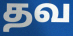
தவ